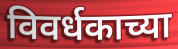
विवर्धकाच्या